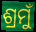
ଶ୍ରମୁଁ